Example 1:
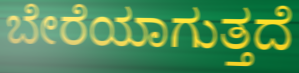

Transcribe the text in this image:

ಬೇರೆಯಾಗುತ್ತದೆ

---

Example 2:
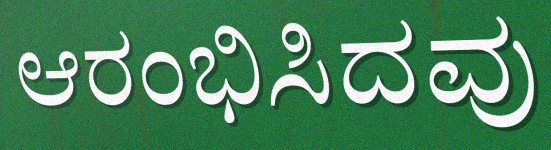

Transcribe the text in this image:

ಆರಂಭಿಸಿದವು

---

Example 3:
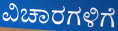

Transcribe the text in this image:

ವಿಚಾರಗಳಿಗೆ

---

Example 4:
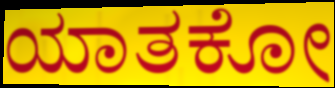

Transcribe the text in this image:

ಯಾತಕೋ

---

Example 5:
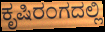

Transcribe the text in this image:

ಕೃಷಿರಂಗದಲ್ಲಿ